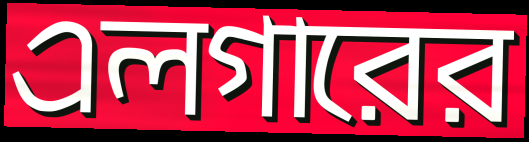
এলগারের